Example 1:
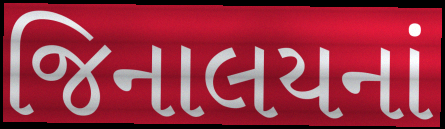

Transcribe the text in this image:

જિનાલયનાં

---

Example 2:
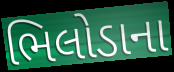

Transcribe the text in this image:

ભિલોડાના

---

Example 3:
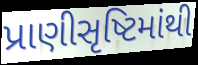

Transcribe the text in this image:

પ્રાણીસૃષ્ટિમાંથી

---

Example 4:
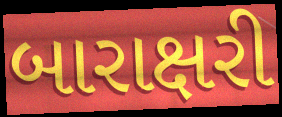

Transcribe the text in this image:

બારાક્ષરી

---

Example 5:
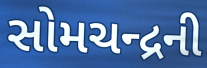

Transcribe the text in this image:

સોમચન્દ્રની